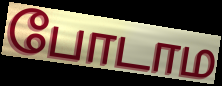
போடாம